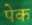
पेक